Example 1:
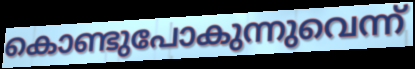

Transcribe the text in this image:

കൊണ്ടുപോകുന്നുവെന്ന്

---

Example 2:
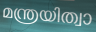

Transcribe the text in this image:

മന്ത്രയിത്വാ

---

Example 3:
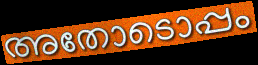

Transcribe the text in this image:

അതോടൊപ്പം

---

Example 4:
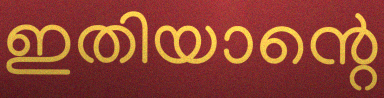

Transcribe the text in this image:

ഇതിയാന്റെ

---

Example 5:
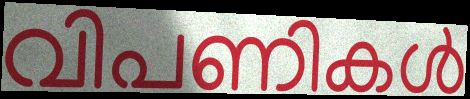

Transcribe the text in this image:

വിപണികൾ